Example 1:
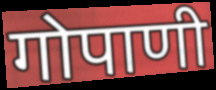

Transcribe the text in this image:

गोपाणी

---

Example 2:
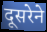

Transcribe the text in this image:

दूसरेने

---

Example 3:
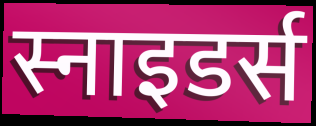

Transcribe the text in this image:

स्नाइडर्स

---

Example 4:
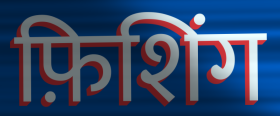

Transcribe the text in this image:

फ़िशिंग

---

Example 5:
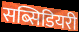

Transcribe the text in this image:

सब्सिडियरी